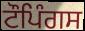
ਟੌਪਿੰਗਸ